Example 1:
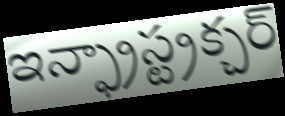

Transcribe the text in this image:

ఇన్ఫ్రాస్ట్రక్చర్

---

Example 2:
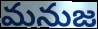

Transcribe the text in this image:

మనుజ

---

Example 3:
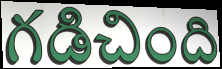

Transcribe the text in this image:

గడిచింది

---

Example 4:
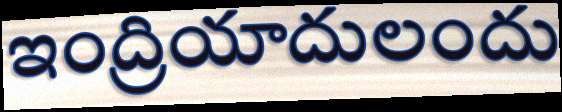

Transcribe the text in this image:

ఇంద్రియాదులందు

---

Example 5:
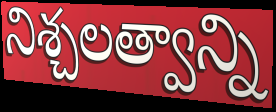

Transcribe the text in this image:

నిశ్చలత్వాన్ని